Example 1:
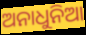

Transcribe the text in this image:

ଅନାଧୁନିଆ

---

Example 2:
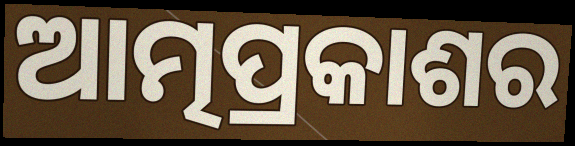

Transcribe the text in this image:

ଆତ୍ମପ୍ରକାଶର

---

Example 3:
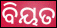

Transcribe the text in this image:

ବିୟତ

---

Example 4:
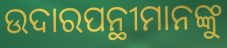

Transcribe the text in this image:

ଉଦାରପନ୍ଥୀମାନଙ୍କୁ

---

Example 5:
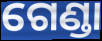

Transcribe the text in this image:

ଗେଣ୍ଡା